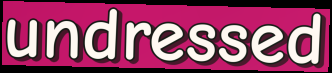
undressed